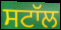
ਸਟਾੱਲ